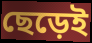
ছেড়েই